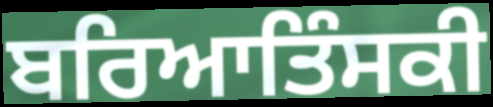
ਬਰਿਆਤਿੰਸਕੀ